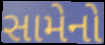
સામેનો